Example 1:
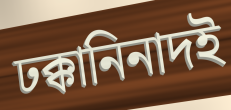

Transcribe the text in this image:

ঢক্কানিনাদই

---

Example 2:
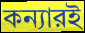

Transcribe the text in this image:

কন্যারই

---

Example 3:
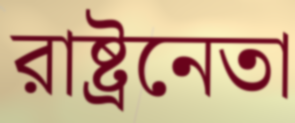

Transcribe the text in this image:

রাষ্ট্রনেতা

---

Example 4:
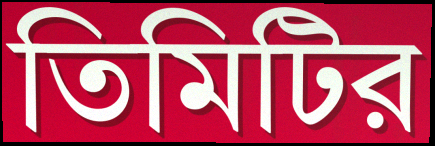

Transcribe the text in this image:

তিমিটির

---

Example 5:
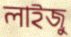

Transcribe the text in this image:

লাইজু